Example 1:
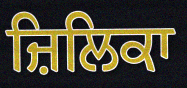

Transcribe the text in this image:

ਜ਼ਿਲਿਕਾ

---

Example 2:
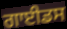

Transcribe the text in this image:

ਗਾਈਡਸ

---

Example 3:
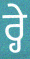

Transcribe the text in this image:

ਰ੍ਹੇ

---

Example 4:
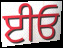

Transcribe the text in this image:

ਈਓ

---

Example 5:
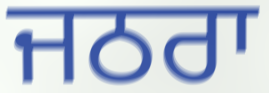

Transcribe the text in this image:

ਜਠਰਾ